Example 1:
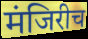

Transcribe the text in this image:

मंजिरीच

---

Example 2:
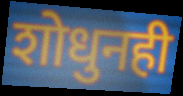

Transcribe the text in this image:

शोधुनही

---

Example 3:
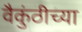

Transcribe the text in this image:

वैकुंठीच्या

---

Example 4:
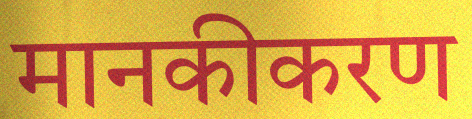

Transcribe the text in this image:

मानकीकरण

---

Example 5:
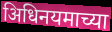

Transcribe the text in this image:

अिधिनयमाच्या